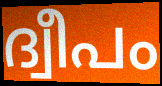
ദ്വീപം